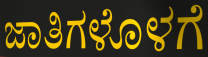
ಜಾತಿಗಳೊಳಗೆ